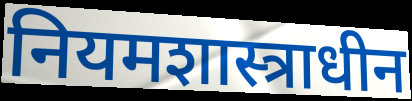
नियमशास्त्राधीन